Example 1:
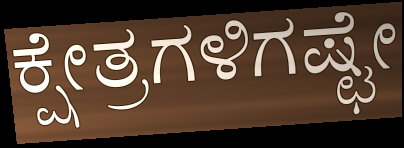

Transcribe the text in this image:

ಕ್ಷೇತ್ರಗಳಿಗಷ್ಟೇ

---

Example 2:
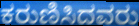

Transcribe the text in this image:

ಕರುಣಿಸಿದವರು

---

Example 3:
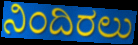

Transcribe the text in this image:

ನಿಂದಿರಲು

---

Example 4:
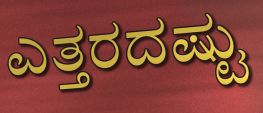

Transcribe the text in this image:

ಎತ್ತರದಷ್ಟು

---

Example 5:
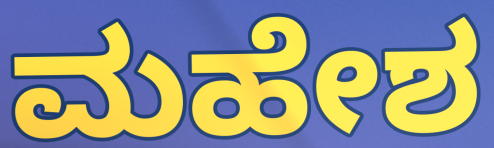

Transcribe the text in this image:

ಮಹೇಶ